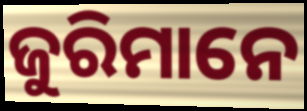
ଜୁରିମାନେ